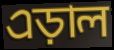
এড়াল